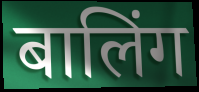
बालिंग